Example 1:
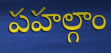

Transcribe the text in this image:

పహల్గాం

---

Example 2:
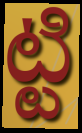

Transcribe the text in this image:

ట్టి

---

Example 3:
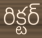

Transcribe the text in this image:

రిక్టర్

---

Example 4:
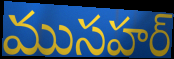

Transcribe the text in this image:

ముసహర్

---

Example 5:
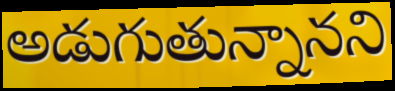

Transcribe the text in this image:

అడుగుతున్నానని